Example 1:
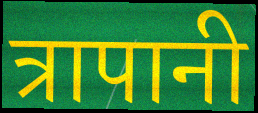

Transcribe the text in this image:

त्रापानी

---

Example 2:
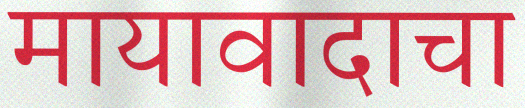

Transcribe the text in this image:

मायावादाचा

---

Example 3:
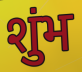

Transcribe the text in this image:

शुंभ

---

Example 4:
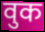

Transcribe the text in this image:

वुक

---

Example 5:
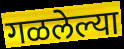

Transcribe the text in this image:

गळलेल्या